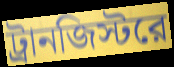
ট্রানজিস্টরে